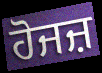
ਹੋਜਜ਼